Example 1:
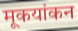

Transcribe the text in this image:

मूकयांकन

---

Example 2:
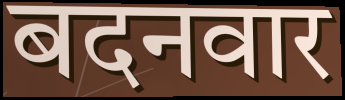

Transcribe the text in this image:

बदनवार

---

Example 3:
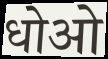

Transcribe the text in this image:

धोओ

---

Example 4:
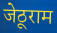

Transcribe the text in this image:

जेठूराम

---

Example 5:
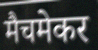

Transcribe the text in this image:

मैचमेकर